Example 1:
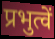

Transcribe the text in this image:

प्रभुत्वें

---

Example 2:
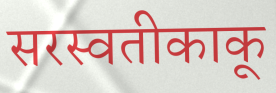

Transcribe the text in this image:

सरस्वतीकाकू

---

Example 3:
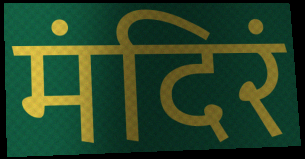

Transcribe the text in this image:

मंदिरं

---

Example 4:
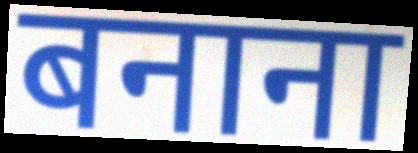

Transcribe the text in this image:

बनाना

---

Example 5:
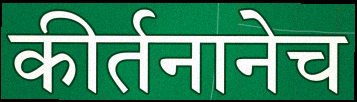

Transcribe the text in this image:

कीर्तनानेच